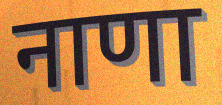
नाणा